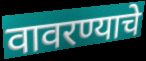
वावरण्याचे